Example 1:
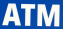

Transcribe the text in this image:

ATM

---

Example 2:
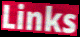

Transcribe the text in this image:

Links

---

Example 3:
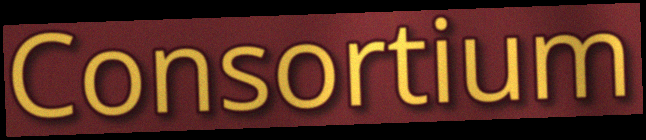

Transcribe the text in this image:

Consortium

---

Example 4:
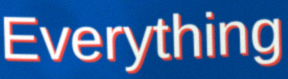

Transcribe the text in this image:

Everything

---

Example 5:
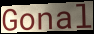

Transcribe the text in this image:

Gonal